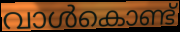
വാൾകൊണ്ട്